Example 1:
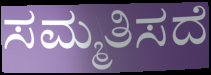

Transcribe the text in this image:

ಸಮ್ಮತಿಸದೆ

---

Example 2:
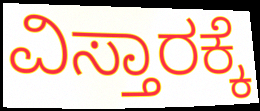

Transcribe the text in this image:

ವಿಸ್ತಾರಕ್ಕೆ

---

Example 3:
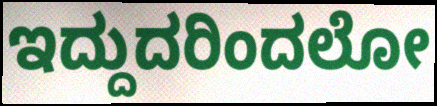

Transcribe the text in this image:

ಇದ್ದುದರಿಂದಲೋ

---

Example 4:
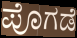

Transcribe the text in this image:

ಪೊಗಡೆ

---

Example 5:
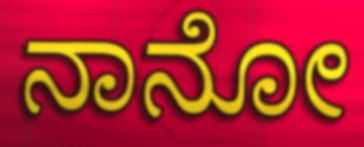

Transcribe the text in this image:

ನಾನೋ